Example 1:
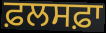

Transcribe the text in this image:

ਫ਼ਲਸਫ਼ਾ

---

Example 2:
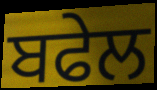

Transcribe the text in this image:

ਬਫੇਲ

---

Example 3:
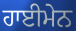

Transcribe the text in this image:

ਹਾਈਮੇਨ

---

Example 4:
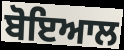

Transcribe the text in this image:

ਬੋਇਆਲ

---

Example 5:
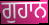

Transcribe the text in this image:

ਗੁਹਾਨ